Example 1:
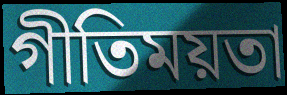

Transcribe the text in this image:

গীতিময়তা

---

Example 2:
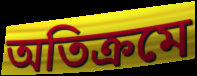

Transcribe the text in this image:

অতিক্ৰমে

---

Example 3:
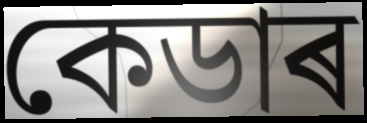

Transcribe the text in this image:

কেডাৰ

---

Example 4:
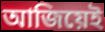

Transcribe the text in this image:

আজিয়েই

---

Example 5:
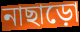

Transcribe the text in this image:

নাছাড়ো